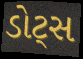
ડોટ્સ